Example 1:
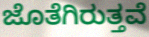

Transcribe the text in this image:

ಜೊತೆಗಿರುತ್ತವೆ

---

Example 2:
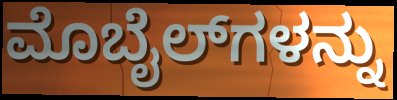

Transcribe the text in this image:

ಮೊಬೈಲ್‌ಗಳನ್ನು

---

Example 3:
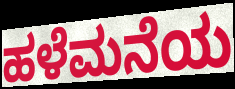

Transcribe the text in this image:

ಹಳೆಮನೆಯ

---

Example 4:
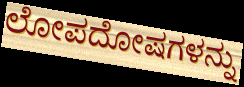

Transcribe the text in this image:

ಲೋಪದೋಷಗಳನ್ನು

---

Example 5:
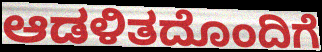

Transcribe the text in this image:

ಆಡಳಿತದೊಂದಿಗೆ